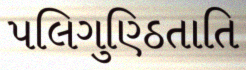
પલિગુણ્ઠિતાતિ